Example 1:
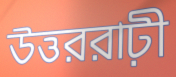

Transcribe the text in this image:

উত্তররাঢ়ী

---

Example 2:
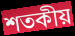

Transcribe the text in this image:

শতকীয়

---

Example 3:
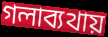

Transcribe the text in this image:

গলাব্যথায়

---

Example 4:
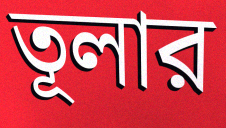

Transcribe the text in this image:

তূলার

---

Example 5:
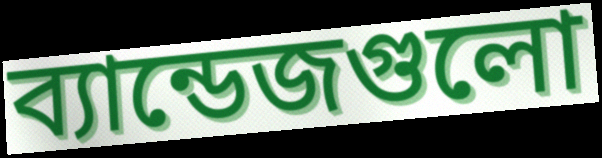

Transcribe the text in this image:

ব্যান্ডেজগুলো